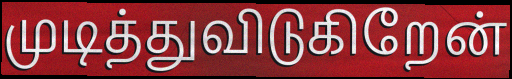
முடித்துவிடுகிறேன்